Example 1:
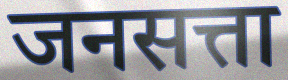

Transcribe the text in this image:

जनसत्ता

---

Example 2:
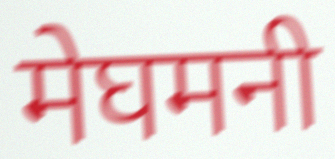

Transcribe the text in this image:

मेघमनी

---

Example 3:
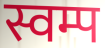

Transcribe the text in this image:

स्वम्प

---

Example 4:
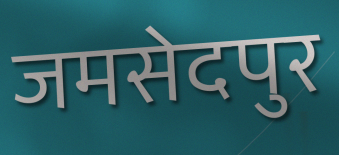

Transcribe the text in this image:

जमसेदपुर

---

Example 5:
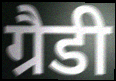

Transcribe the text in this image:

ग्रैडी